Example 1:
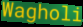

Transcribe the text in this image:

Wagholi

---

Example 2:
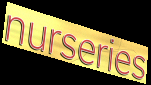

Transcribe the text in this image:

nurseries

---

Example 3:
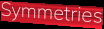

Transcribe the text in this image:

Symmetries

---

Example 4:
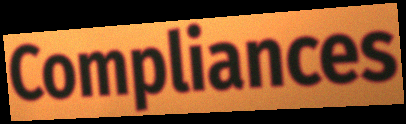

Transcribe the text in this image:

Compliances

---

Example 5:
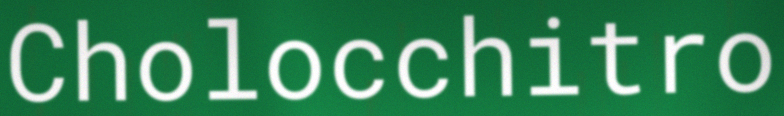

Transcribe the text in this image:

Cholocchitro